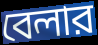
বেলার